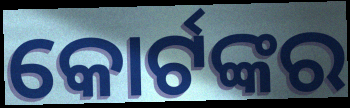
କୋର୍ଟଙ୍କର